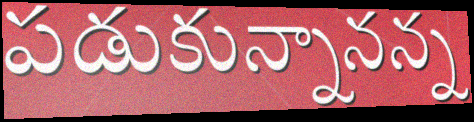
పడుకున్నానన్న